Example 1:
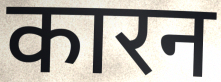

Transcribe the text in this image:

कारन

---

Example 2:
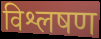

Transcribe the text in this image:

विश्लषण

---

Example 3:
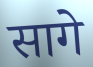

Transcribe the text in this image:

सागे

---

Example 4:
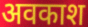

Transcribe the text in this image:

अवकाश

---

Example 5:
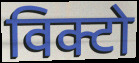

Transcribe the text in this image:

विक्टो